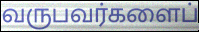
வருபவர்களைப்